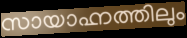
സായാഹ്നത്തിലും